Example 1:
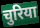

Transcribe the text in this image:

चुरिया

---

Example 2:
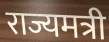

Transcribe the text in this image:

राज्यमत्री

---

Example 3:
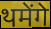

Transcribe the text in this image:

थमेंगे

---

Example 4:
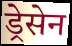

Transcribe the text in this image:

ड्रेसेन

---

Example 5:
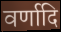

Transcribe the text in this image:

वर्णादि